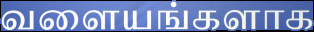
வளையங்களாக